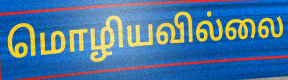
மொழியவில்லை